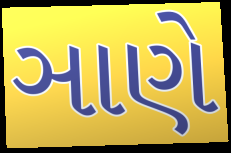
ઞાણે